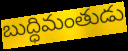
బుద్ధిమంతుడు